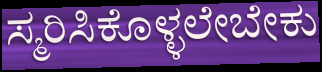
ಸ್ಮರಿಸಿಕೊಳ್ಳಲೇಬೇಕು